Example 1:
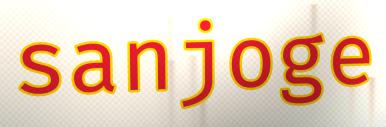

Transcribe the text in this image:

sanjoge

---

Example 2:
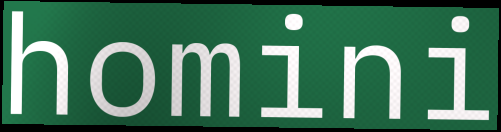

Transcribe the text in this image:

homini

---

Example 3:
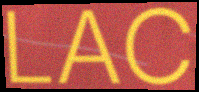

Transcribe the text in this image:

LAC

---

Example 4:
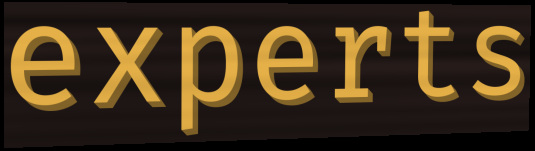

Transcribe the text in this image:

experts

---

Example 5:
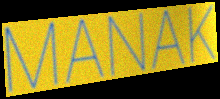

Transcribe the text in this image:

MANAK